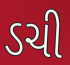
ડચી